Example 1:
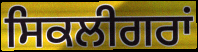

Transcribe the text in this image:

ਸਿਕਲੀਗਰਾਂ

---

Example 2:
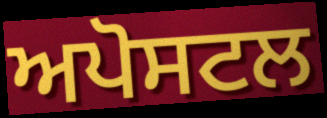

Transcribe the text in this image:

ਅਪੋਸਟਲ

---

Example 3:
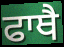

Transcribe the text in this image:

ਫਾਥੈ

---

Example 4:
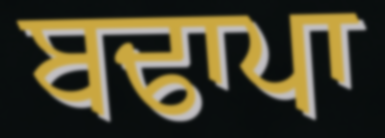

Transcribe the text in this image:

ਬਢਾਪਾ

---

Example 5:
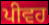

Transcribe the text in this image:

ਪੀਵਹ